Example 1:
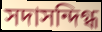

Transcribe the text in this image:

সদাসন্দিগ্ধ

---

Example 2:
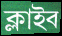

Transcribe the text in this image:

ক্লাইব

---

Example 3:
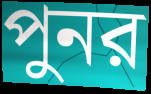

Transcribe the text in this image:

পুনর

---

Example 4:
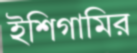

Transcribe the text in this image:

ইশিগামির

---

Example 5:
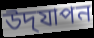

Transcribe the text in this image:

উদ্‌যাপন